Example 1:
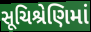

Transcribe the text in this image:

સૂચિશ્રેણિમાં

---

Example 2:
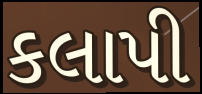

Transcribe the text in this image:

કલાપી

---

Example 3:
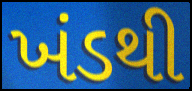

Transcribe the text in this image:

ખંડથી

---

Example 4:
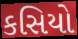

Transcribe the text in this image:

કસિયો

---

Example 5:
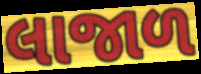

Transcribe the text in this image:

લાજાળ